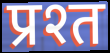
प्रश्त